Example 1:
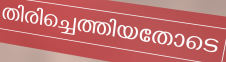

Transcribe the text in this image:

തിരിച്ചെത്തിയതോടെ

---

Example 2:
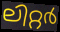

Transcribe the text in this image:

ലിറ്റർ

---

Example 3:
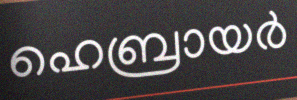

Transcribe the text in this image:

ഹെബ്രായർ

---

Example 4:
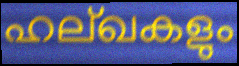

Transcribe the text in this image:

ഹല്ഖകളും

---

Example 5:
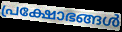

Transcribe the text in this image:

പ്രക്ഷോഭങ്ങൾ